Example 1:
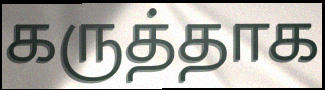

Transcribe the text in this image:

கருத்தாக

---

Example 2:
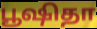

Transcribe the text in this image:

பூஷிதா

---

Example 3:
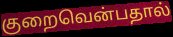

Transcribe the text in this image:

குறைவென்பதால்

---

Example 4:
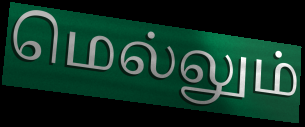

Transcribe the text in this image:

மெல்லும்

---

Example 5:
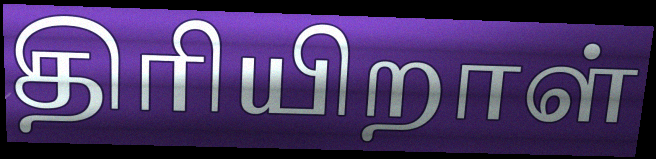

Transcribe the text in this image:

திரியிறாள்